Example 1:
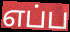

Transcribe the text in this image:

எப்ப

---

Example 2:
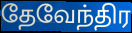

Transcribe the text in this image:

தேவேந்திர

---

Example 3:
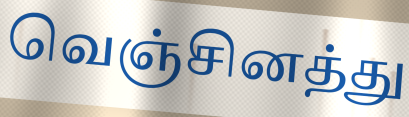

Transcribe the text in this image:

வெஞ்சினத்து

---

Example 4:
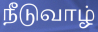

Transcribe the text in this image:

நீடுவாழ்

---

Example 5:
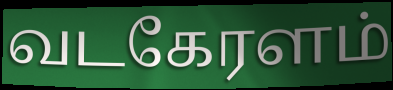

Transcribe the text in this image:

வடகேரளம்